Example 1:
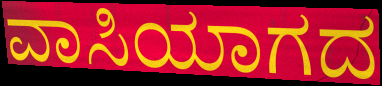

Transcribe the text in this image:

ವಾಸಿಯಾಗದ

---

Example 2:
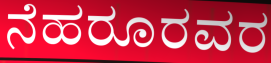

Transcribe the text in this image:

ನೆಹರೂರವರ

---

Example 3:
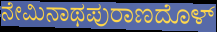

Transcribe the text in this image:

ನೇಮಿನಾಥಪುರಾಣದೊಳ್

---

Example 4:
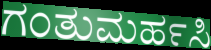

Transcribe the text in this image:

ಗಂತುಮರ್ಹಸಿ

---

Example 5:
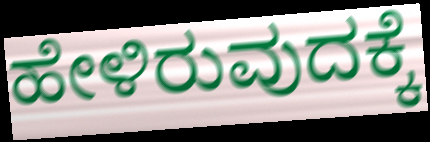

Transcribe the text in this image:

ಹೇಳಿರುವುದಕ್ಕೆ